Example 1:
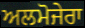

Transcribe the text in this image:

ਅਲਮੋਜੇਰਾ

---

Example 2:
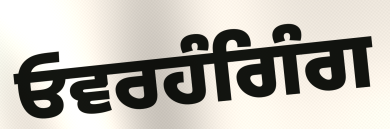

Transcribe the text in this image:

ਓਵਰਹੰਗਿੰਗ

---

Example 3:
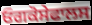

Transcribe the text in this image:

ਓਗਕੋਸੇਫਾਲਸ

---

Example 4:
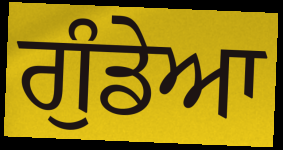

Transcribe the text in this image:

ਗੁੰਡੇਆ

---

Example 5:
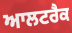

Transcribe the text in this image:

ਆਲਟਰੈਕ